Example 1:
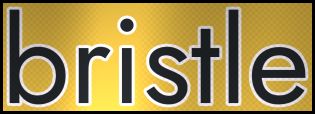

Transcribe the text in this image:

bristle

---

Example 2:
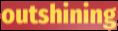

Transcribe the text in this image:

outshining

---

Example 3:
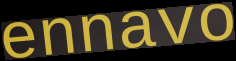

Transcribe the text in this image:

ennavo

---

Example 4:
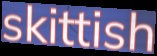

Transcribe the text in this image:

skittish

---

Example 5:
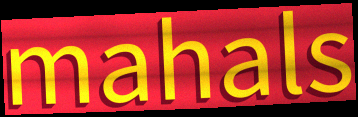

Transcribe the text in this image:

mahals